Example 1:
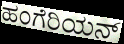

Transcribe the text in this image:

ಹಂಗೆರಿಯನ್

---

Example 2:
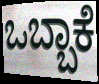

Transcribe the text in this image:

ಒಬ್ಬಾಕೆ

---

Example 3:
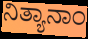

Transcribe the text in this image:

ನಿತ್ಯಾನಾಂ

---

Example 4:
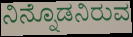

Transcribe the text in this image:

ನಿನ್ನೊಡನಿರುವ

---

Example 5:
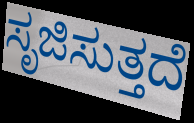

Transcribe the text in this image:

ಸೃಜಿಸುತ್ತದೆ